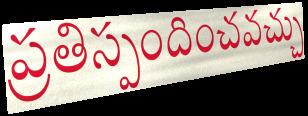
ప్రతిస్పందించవచ్చు